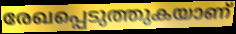
രേഖപ്പെടുത്തുകയാണ്